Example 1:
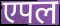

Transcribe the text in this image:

एपल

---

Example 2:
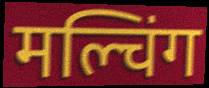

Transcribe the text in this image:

मल्चिंग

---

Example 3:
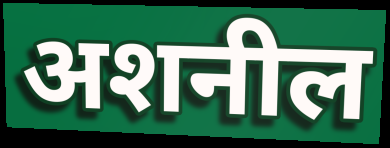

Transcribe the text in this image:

अशनील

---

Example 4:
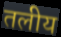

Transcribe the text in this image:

तलीय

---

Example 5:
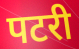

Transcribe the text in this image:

पटरी